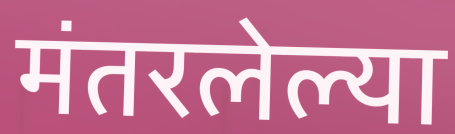
मंतरलेल्या